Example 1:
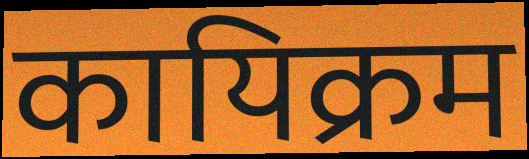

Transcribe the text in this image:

कायिक्रम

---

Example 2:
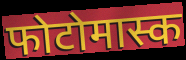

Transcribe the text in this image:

फोटोमास्क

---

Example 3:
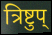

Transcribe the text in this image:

त्रिष्टुप्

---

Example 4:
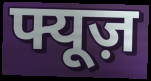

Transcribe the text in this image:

फ्यूज़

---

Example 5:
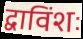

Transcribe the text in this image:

द्वाविंशः